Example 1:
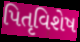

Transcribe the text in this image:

પિતૃવિશેષ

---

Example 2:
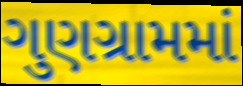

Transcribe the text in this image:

ગુણગ્રામમાં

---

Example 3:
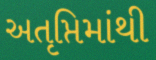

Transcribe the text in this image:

અતૃપ્તિમાંથી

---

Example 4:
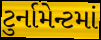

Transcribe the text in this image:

ટુર્નામેન્ટમાં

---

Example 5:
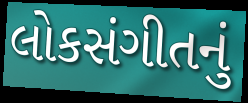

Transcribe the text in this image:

લોકસંગીતનું